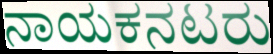
ನಾಯಕನಟರು